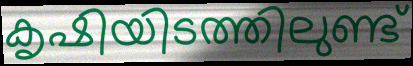
കൃഷിയിടത്തിലുണ്ട്